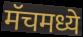
मॅचमध्ये